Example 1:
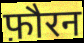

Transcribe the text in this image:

फ़ौरन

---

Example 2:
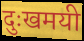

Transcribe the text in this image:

दुःखमयी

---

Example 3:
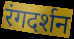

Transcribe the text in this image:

रंगदर्शन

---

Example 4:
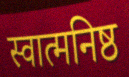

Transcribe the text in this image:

स्वात्मनिष्ठ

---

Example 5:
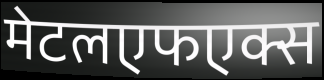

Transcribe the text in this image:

मेटलएफएक्स